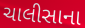
ચાલીસાના